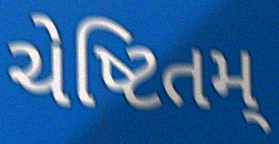
ચેષ્ટિતમ્